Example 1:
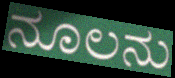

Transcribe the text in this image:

ನೂಲನು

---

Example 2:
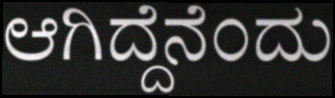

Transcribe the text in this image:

ಆಗಿದ್ದೆನೆಂದು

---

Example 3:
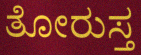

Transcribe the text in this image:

ತೋರುಸ್ತ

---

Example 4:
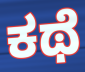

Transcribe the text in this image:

ಕಥೆ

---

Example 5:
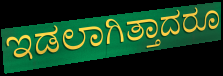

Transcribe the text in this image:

ಇಡಲಾಗಿತ್ತಾದರೂ